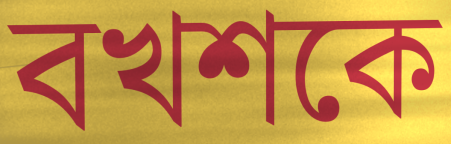
বখশকে